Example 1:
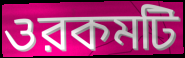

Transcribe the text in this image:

ওরকমটি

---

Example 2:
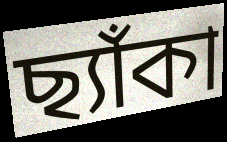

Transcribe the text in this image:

ছ্যাঁকা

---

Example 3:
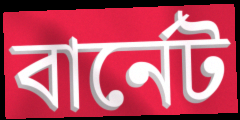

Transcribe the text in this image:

বার্নেট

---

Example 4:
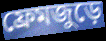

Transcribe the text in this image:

ফ্রেমজুড়ে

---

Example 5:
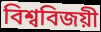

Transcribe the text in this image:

বিশ্ববিজয়ী